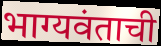
भाग्यवंताची